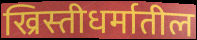
ख्रिस्तीधर्मातील